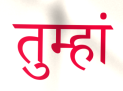
तुम्हां